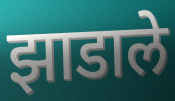
झाडाले